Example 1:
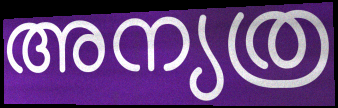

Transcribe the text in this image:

അന്യത്ര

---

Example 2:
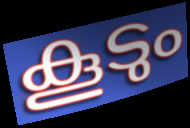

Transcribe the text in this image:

കൂടും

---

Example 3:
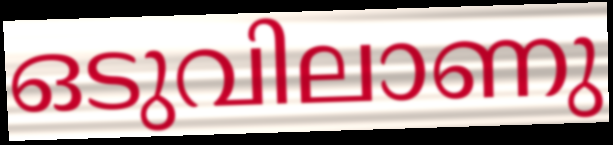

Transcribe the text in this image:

ഒടുവിലാണു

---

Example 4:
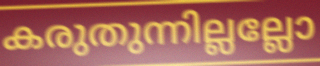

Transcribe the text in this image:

കരുതുന്നില്ലല്ലോ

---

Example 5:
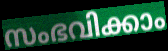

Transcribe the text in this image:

സംഭവിക്കാം